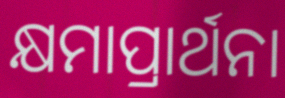
କ୍ଷମାପ୍ରାର୍ଥନା